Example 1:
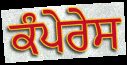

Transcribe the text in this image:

ਕੰਪੇਰੇਸ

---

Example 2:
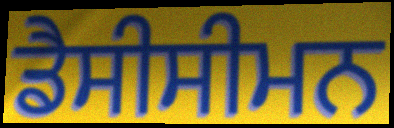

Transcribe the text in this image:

ਡੈਸੀਸੀਮਨ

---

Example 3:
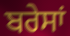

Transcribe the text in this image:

ਬਰੇਸਾਂ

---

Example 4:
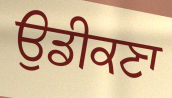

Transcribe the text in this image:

ਉਡੀਕਣਾ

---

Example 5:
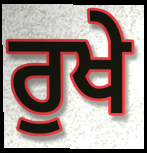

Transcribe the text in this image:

ਰੁਖੇ